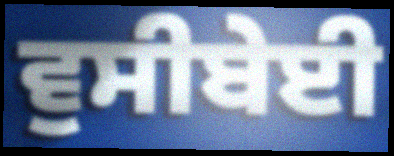
ਵੁਸੀਬੇਈ